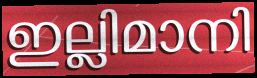
ഇല്ലിമാനി